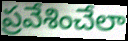
ప్రవేశించేలా